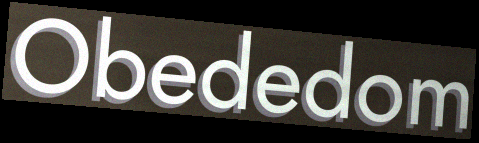
Obededom